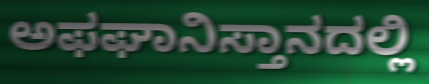
ಅಫಘಾನಿಸ್ತಾನದಲ್ಲಿ